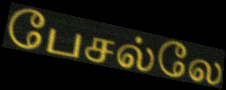
பேசல்லே